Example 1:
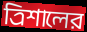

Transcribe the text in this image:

ত্রিশালের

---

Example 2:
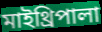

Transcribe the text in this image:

মাইথ্রিপালা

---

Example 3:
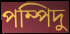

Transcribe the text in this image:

পম্পিদু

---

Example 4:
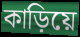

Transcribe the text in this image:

কাড়িয়ে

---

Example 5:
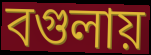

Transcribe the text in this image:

বগুলায়